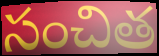
సంచిత